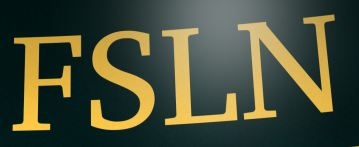
FSLN